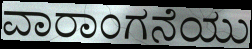
ವಾರಾಂಗನೆಯು